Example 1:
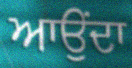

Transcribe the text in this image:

ਆਉਂਦਾ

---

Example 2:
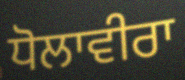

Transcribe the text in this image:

ਧੋਲਾਵੀਰਾ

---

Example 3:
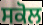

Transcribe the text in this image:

ਸਕੋਲ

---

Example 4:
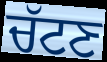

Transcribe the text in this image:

ਚੱਟਣ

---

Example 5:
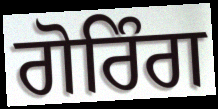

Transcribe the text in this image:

ਗੋਰਿੰਗ